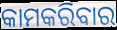
କାମକରିବାର